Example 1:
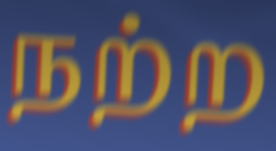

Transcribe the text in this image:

நற்ற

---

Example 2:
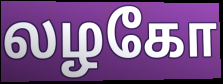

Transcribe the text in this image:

லழகோ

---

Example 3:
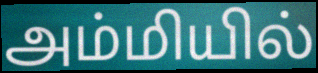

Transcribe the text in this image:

அம்மியில்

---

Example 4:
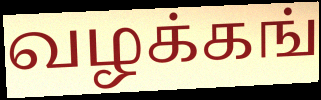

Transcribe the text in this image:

வழக்கங்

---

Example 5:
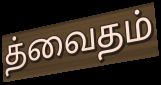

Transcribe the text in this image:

த்வைதம்